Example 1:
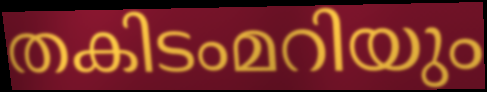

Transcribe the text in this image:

തകിടംമറിയും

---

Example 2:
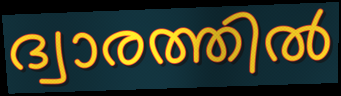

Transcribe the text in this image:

ദ്വാരത്തിൽ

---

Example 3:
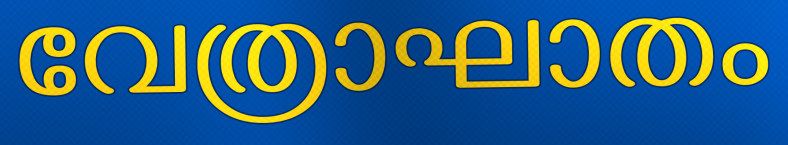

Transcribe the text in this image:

വേത്രാഘാതം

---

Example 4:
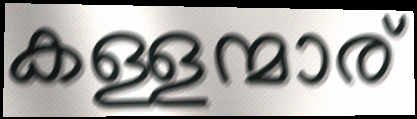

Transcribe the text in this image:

കള്ളന്മാര്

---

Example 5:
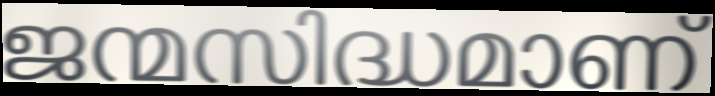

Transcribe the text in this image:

ജന്മസിദ്ധമാണ്